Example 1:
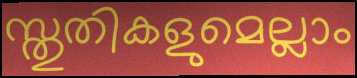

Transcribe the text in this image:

സ്തുതികളുമെല്ലാം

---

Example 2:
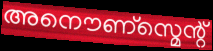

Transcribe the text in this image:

അനൌണ്സ്മെന്റ്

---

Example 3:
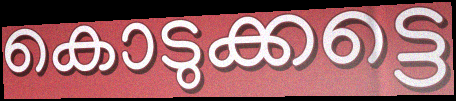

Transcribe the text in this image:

കൊടുക്കട്ടെ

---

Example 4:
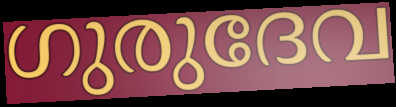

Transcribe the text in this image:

ഗുരുദേവ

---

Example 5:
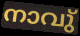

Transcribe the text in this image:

നാവു്